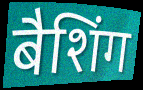
बैशिंग